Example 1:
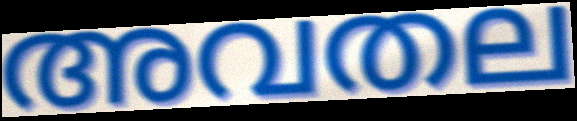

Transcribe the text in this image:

അവതല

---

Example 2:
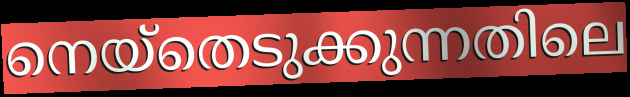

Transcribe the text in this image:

നെയ്തെടുക്കുന്നതിലെ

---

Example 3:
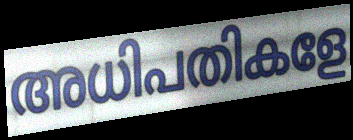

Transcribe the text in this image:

അധിപതികളേ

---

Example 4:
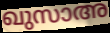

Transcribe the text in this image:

ഖുസാഅ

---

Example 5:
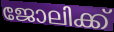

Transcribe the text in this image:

ജോലിക്ക്